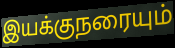
இயக்குநரையும்